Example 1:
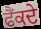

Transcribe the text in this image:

ਫੈਂਕਦੇ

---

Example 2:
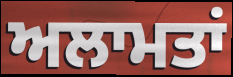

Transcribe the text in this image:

ਅਲਾਮਤਾਂ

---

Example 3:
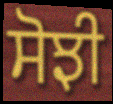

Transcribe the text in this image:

ਸੋਝੀ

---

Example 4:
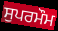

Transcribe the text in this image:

ਸੁਪਰਮੌਮ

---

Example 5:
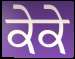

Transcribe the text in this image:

ਕੇਕੇ